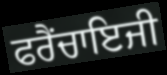
ਫਰੈਂਚਾਇਜੀ